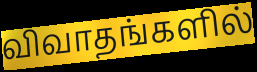
விவாதங்களில்